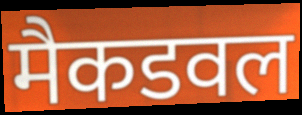
मैकडवल